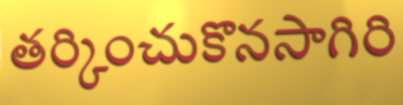
తర్కించుకొనసాగిరి